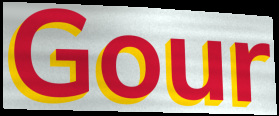
Gour